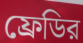
ফ্রেডির